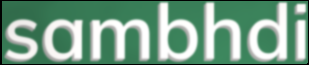
sambhdi